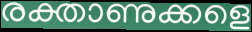
രക്താണുക്കളെ